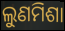
ଲୁଣମିଶା